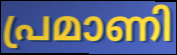
പ്രമാണി